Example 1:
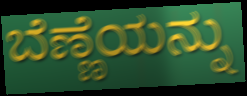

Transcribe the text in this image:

ಬೆಣ್ಣೆಯನ್ನು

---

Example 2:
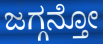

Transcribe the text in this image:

ಜಗ್ಗನ್ತೋ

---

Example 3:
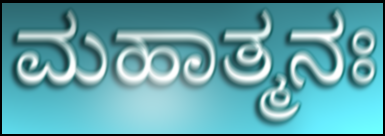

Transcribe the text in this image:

ಮಹಾತ್ಮನಃ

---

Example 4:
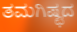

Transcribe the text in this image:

ತಮಗಿಷ್ಟದ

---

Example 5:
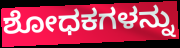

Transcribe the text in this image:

ಶೋಧಕಗಳನ್ನು